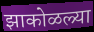
झाकोळल्या